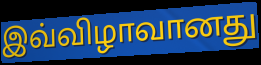
இவ்விழாவானது